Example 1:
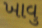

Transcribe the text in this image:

ખાવુ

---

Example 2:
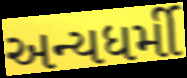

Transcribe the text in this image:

અન્યધર્મી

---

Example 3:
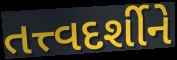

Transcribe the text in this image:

તત્ત્વદર્શીને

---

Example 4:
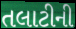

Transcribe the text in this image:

તલાટીની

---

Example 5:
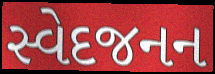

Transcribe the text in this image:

સ્વેદજનન